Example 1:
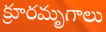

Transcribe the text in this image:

క్రూరమృగాలు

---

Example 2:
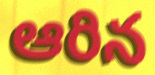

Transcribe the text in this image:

ఆరిన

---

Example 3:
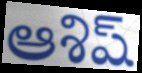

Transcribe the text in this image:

ఆశిష్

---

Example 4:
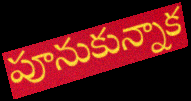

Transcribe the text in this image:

పూనుకున్నాక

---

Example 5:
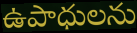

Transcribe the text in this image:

ఉపాధులను